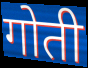
गोती